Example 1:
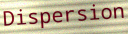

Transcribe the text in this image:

Dispersion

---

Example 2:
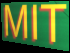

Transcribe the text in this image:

MIT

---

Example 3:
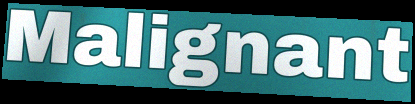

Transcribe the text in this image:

Malignant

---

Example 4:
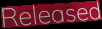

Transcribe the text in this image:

Released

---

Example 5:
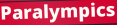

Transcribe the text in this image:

Paralympics